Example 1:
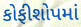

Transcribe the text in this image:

કોફીશોપમાં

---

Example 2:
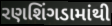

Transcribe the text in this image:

રણશિંગડામાંથી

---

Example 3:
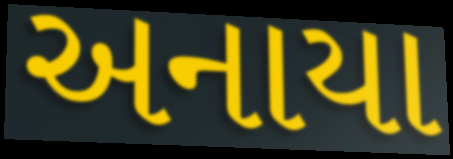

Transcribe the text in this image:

અનાયા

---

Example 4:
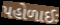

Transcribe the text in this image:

પહોળાઈઃ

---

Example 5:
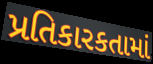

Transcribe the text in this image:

પ્રતિકારકતામાં